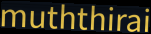
muththirai